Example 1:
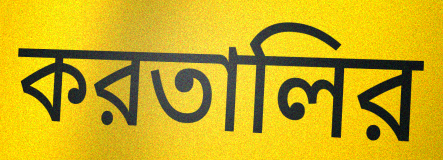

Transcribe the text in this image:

করতালির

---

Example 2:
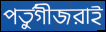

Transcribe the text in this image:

পর্তুগীজরাই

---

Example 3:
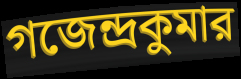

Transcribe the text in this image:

গজেন্দ্রকুমার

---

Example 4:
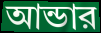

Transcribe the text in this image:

আন্ডার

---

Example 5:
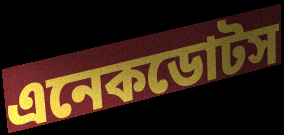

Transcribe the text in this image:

এনেকডোটস